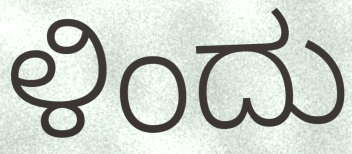
ಳಿಂದು